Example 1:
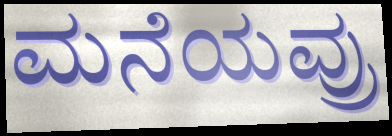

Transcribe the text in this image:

ಮನೆಯವ್ರು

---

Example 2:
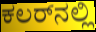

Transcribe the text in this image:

ಕಲರ್‌ನಲ್ಲಿ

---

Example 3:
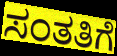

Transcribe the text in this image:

ಸಂತತಿಗೆ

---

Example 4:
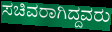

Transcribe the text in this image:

ಸಚಿವರಾಗಿದ್ದವರು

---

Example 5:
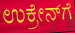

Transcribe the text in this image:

ಉಕ್ರೇನ್‌ಗೆ